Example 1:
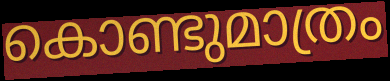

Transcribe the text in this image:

കൊണ്ടുമാത്രം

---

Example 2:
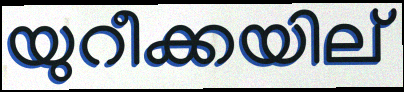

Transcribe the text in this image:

യുറീക്കയില്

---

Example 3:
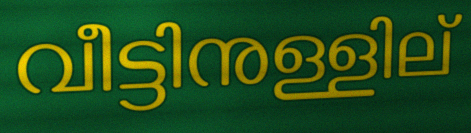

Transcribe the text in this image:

വീട്ടിനുള്ളില്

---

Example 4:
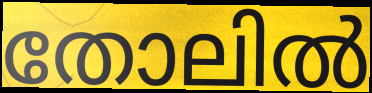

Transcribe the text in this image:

തോലിൽ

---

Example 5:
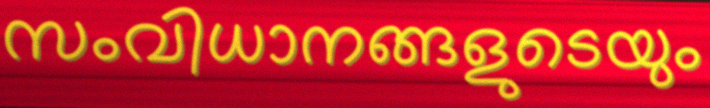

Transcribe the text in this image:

സംവിധാനങ്ങളുടെയും